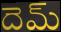
దెమ్